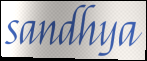
sandhya